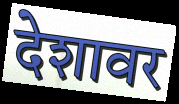
देशावर